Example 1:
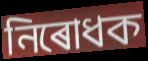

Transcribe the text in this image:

নিৰোধক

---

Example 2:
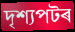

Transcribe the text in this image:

দৃশ্যপটৰ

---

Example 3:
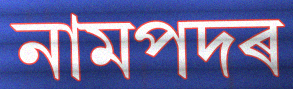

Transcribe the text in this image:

নামপদৰ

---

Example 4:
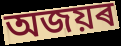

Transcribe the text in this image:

অজয়ৰ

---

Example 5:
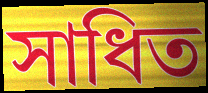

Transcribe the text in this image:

সাধিত